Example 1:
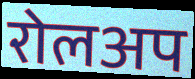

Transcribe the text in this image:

रोलअप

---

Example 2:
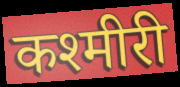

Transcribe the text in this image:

कश्मीरी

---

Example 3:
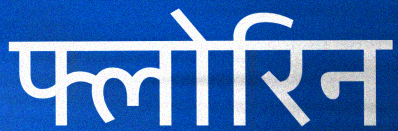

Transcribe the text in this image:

फ्लोरिन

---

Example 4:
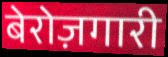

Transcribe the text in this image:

बेरोज़गारी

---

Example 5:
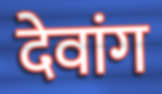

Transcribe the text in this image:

देवांग